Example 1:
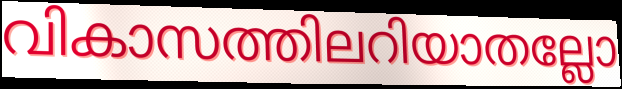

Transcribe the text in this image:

വികാസത്തിലറിയാതല്ലോ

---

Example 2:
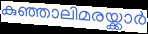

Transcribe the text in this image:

കുഞ്ഞാലിമരയ്ക്കാർ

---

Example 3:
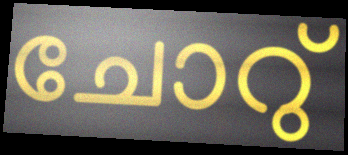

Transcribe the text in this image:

ചോറു്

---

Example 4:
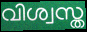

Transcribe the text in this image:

വിശ്വസ്ത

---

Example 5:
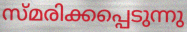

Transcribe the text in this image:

സ്മരിക്കപ്പെടുന്നു